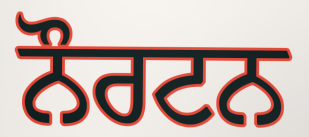
ਨੌਰਟਨ